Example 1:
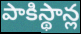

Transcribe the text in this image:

పాకిస్థాన్ల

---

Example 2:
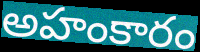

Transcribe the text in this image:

అహంకారం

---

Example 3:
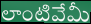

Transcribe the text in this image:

లాంటివేమీ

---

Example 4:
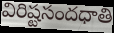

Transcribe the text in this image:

విరిష్టసందధాతి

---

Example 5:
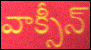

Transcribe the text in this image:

వాక్సీన్